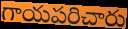
గాయపరిచారు